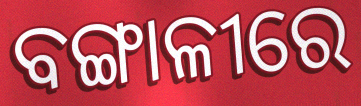
ବଙ୍ଗାଳୀରେ